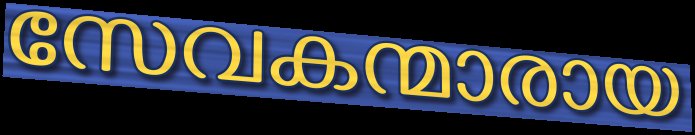
സേവകന്മാരായ